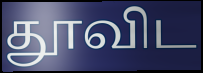
தூவிட